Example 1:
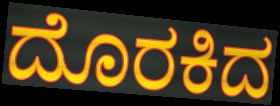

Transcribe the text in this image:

ದೊರಕಿದ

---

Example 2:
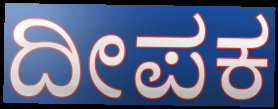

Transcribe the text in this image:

ದೀಪಕ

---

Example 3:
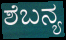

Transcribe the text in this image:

ಶೆಬನ್ಯ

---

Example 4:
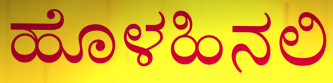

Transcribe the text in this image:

ಹೊಳಹಿನಲಿ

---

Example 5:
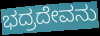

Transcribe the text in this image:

ಭದ್ರದೇವನು